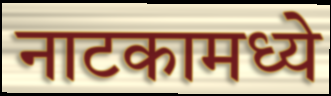
नाटकामध्ये